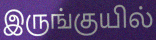
இருங்குயில்